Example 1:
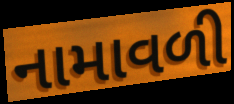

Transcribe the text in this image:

નામાવળી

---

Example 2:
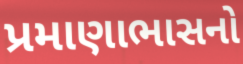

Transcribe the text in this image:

પ્રમાણાભાસનો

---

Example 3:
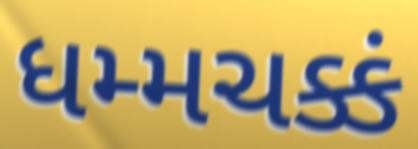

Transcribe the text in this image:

ધમ્મચક્કં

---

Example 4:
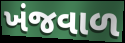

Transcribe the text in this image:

ખંજવાળ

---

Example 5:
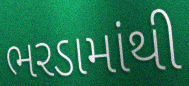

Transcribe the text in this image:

ભરડામાંથી